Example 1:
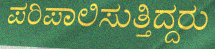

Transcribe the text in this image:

ಪರಿಪಾಲಿಸುತ್ತಿದ್ದರು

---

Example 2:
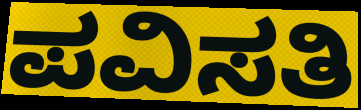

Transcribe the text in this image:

ಪವಿಸತಿ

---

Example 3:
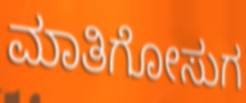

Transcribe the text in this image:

ಮಾತಿಗೋಸುಗ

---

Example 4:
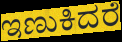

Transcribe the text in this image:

ಇಣುಕಿದರೆ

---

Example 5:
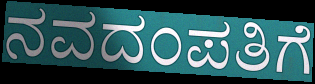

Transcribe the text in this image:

ನವದಂಪತಿಗೆ